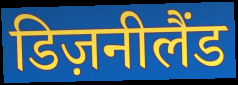
डिज़नीलैंड